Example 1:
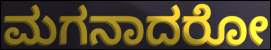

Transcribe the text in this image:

ಮಗನಾದರೋ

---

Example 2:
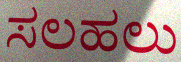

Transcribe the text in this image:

ಸಲಹಲು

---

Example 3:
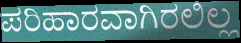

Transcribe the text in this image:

ಪರಿಹಾರವಾಗಿರಲಿಲ್ಲ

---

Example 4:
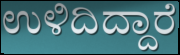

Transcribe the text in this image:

ಉಳಿದಿದ್ದಾರೆ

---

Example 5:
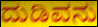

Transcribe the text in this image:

ದುಡಿವನು